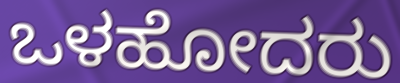
ಒಳಹೋದರು